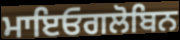
ਮਾਇਓਗਲੋਬਿਨ